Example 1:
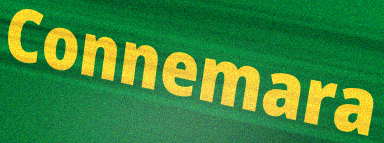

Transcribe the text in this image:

Connemara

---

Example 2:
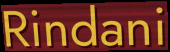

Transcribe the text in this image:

Rindani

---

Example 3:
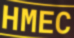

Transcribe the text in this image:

HMEC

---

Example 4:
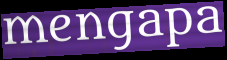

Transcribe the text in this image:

mengapa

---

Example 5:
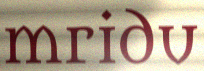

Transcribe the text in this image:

mridu